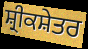
ਸ਼੍ਰੀਕਸ਼ੇਤਰ